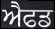
ਐਫਡ